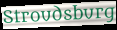
Stroudsburg